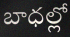
బాధల్లో